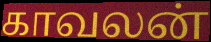
காவலன்